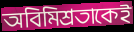
অবিমিশ্রতাকেই